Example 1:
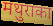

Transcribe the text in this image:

मथुराका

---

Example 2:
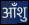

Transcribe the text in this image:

आँशु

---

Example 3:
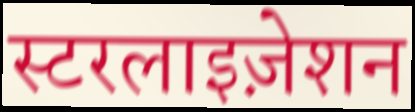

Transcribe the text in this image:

स्टरलाइज़ेशन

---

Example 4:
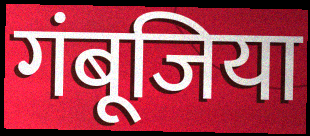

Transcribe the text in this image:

गंबूजिया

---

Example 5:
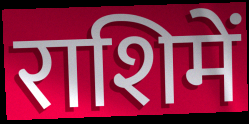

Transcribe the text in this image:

राशिमें